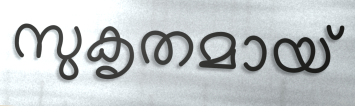
സുകൃതമായ്